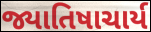
જ્યાતિષાચાર્ય